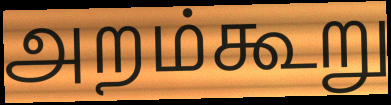
அறம்கூறு